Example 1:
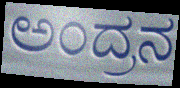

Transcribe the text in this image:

ಅಂದ್ರನ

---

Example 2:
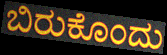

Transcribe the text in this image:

ಬಿರುಕೊಂದು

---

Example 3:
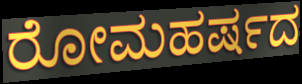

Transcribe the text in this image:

ರೋಮಹರ್ಷದ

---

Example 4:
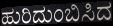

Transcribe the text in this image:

ಹುರಿದುಂಬಿಸಿದ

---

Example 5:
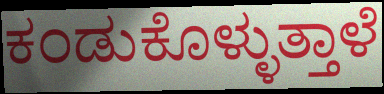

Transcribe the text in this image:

ಕಂಡುಕೊಳ್ಳುತ್ತಾಳೆ